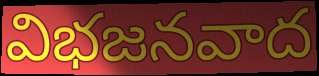
విభజనవాద